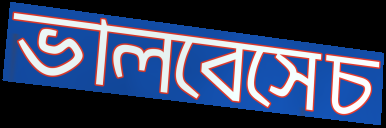
ভালবেসেচ